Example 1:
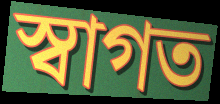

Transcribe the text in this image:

স্বাগত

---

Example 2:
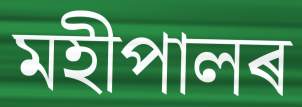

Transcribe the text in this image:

মহীপালৰ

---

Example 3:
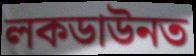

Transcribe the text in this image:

লকডাউনত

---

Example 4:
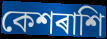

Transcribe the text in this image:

কেশৰাশি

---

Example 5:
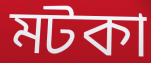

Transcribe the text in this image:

মটকা